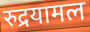
रुद्रयामल